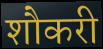
शौकरी